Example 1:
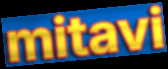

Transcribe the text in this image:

mitavi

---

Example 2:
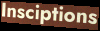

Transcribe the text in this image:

Insciptions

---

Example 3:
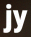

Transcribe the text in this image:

jy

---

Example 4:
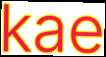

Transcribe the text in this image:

kae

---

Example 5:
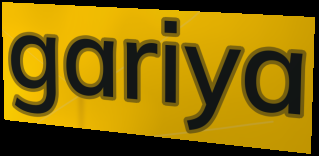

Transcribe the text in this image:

gariya